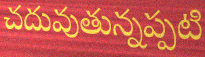
చదువుతున్నప్పటి